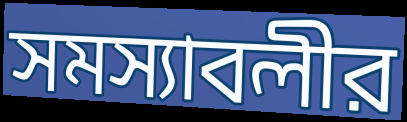
সমস্যাবলীর